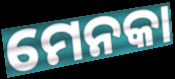
ମେନକା